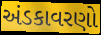
અંડકાવરણો